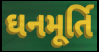
ઘનમૂર્તિ